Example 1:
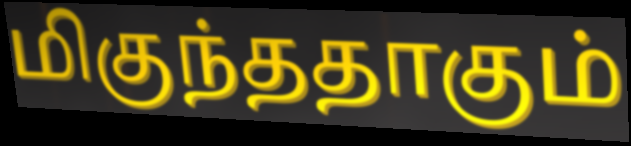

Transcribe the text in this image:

மிகுந்ததாகும்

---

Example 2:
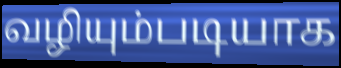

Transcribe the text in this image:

வழியும்படியாக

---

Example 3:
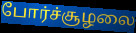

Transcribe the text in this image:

போர்ச்சூழலை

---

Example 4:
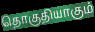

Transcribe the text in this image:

தொகுதியாகும்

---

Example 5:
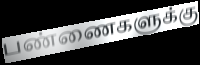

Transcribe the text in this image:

பண்ணைகளுக்கு